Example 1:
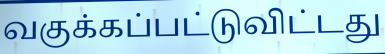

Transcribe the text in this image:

வகுக்கப்பட்டுவிட்டது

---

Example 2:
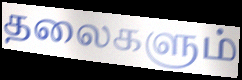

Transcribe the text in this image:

தலைகளும்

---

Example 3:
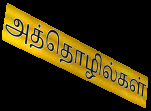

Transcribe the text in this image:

அத்தொழில்கள்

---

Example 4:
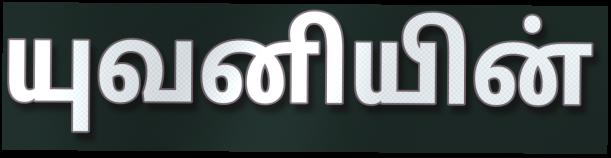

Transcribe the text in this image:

யுவனியின்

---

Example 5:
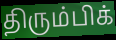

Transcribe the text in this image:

திரும்பிக்